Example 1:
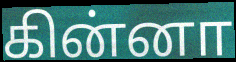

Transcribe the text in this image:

கின்னா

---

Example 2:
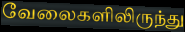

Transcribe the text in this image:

வேலைகளிலிருந்து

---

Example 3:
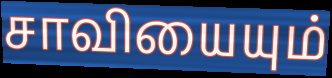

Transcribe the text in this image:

சாவியையும்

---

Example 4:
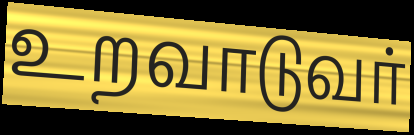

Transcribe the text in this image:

உறவாடுவர்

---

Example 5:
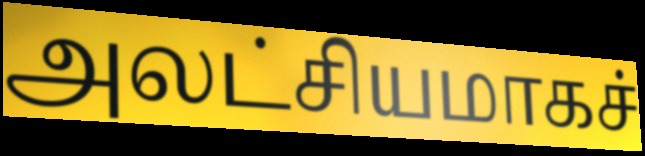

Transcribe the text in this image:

அலட்சியமாகச்